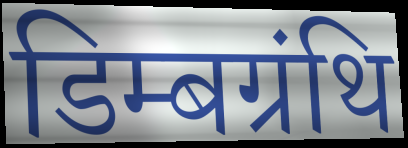
डिम्बग्रंथि